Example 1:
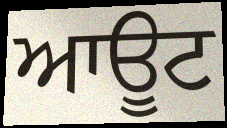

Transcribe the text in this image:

ਆਊਟ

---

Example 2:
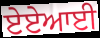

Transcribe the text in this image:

ਏਏਆਈ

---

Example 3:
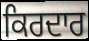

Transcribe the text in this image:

ਕਿਰਦਾਰ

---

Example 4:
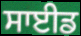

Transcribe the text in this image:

ਸਾਈਡ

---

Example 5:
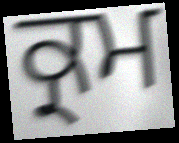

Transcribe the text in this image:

ਕ੍ਰਮ